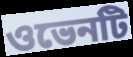
ওভেনটি